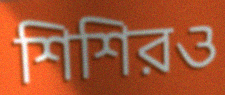
শিশিরও